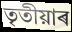
তৃতীয়াৰ